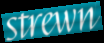
strewn